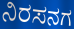
ನಿರಸನಗ